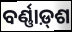
ବର୍ଣ୍ଣାଡ଼୍‌ଶ